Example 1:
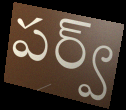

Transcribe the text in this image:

పర్వ్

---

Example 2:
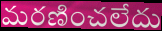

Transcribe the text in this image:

మరణించలేదు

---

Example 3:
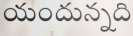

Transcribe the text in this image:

యందున్నది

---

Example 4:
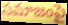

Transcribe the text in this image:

సమాజంపై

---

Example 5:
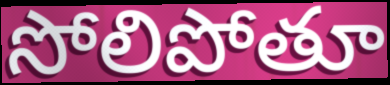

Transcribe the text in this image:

సోలిపోతూ